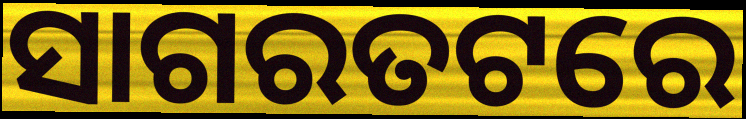
ସାଗରତଟରେ